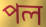
পল